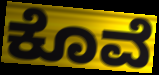
ಕೊವೆ